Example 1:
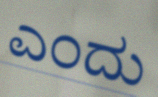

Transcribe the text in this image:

ಎಂದು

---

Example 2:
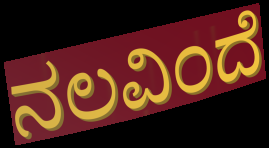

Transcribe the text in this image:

ನಲವಿಂದೆ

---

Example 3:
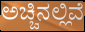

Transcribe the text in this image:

ಅಚ್ಚಿನಲ್ಲಿವೆ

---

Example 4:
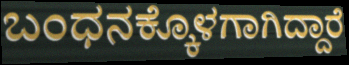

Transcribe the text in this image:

ಬಂಧನಕ್ಕೊಳಗಾಗಿದ್ದಾರೆ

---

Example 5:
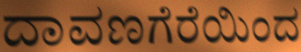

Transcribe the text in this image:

ದಾವಣಗೆರೆಯಿಂದ